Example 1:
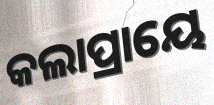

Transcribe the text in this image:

କଲାପ୍ରାୟେ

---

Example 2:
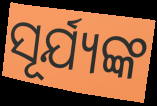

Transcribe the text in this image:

ସୂର୍ଯ୍ୟଙ୍କ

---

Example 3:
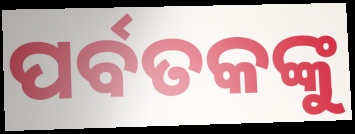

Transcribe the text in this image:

ପର୍ବତକଙ୍କୁ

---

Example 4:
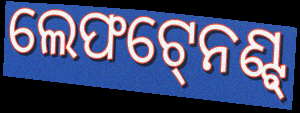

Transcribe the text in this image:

ଲେଫଟ୍‍ନେଣ୍ଟ୍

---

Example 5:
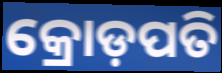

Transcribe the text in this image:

କ୍ରୋଡ଼ପତି